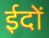
ईदों